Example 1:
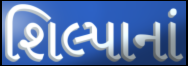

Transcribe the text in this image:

શિલ્પાનાં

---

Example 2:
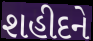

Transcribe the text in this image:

શહીદને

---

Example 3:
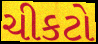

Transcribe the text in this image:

ચીકટો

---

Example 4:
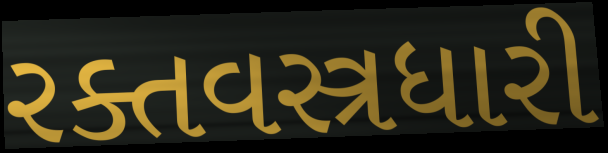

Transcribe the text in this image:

રક્તવસ્ત્રધારી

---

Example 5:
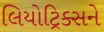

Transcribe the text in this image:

લિયોટ્રિક્સને